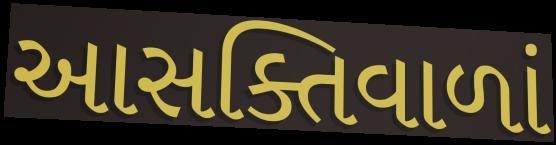
આસક્તિવાળાં